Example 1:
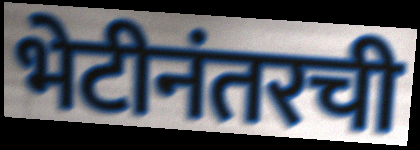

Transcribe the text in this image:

भेटीनंतरची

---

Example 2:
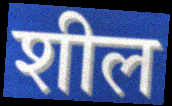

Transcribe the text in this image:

शील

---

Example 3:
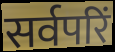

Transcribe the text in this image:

सर्वपरिं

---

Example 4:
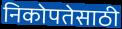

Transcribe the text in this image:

निकोपतेसाठी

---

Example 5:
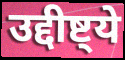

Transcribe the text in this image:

उद्दीष्ट्ये